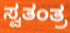
ಸ್ವತಂತ್ರ